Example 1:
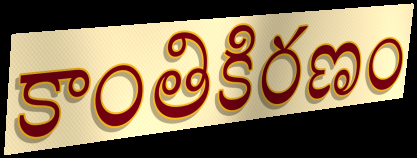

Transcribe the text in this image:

కాంతికిరణం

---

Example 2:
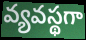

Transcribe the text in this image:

వ్యవస్థగా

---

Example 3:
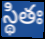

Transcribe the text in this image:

స్థితః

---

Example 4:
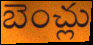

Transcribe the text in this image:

బెంచ్లు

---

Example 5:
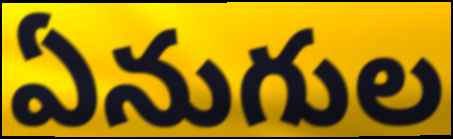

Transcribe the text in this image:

ఏనుగుల